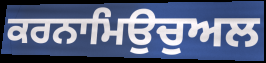
ਕਰਨਾਮਿਉਚੁਅਲ